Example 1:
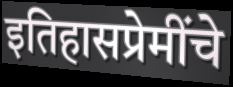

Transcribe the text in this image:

इतिहासप्रेमींचे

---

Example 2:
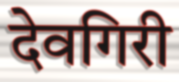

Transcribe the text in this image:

देवगिरी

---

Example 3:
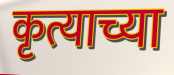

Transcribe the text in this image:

कृत्याच्या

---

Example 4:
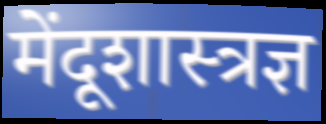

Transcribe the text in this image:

मेंदूशास्त्रज्ञ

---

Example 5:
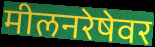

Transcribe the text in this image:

मीलनरेषेवर